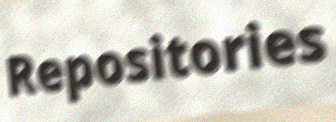
Repositories